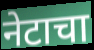
नेटाचा